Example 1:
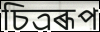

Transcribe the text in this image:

চিত্ৰৰূপ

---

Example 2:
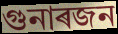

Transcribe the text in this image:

গুনাৰজন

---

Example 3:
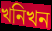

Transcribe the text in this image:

খনিখন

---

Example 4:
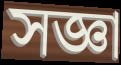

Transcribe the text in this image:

সজ্ঞা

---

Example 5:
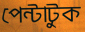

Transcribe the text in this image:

পেন্টাটুক